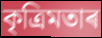
কৃত্ৰিমতাৰ